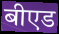
बीएड